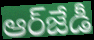
ఆర్‌జేడీ